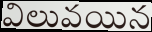
విలువయిన